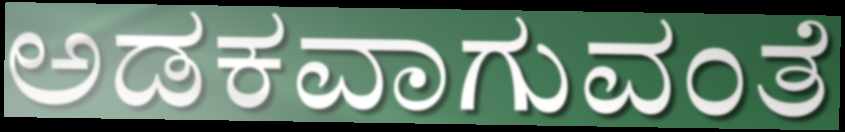
ಅಡಕವಾಗುವಂತೆ